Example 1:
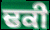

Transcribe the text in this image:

ਢਕੀ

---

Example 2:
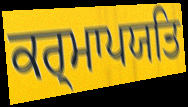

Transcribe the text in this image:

ਕਰ੍ਮਾਪਯਤਿ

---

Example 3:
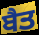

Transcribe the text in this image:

ਬੈਤ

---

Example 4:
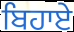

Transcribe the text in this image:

ਬਿਹਾਏ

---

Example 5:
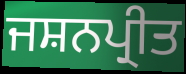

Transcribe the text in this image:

ਜਸ਼ਨਪ੍ਰੀਤ